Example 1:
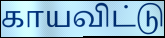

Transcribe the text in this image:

காயவிட்டு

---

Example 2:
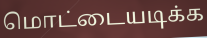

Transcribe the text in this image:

மொட்டையடிக்க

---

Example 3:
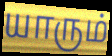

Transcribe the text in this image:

யாரும்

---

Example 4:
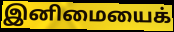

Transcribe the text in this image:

இனிமையைக்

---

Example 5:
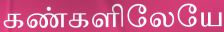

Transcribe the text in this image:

கண்களிலேயே